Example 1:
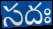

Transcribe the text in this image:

సదః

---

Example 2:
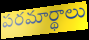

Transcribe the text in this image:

పరమార్థాలు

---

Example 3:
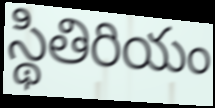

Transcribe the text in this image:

స్థితిరియం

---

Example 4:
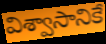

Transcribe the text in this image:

విశ్వాసానికే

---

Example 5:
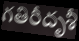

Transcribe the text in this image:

గతిరీదృశీ